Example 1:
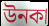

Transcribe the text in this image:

উনকা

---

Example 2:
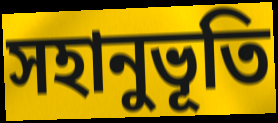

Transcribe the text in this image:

সহানুভূতি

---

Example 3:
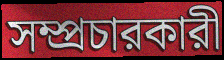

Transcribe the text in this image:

সম্প্রচারকারী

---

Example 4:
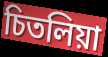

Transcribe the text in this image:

চিতলিয়া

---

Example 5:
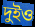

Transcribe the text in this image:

দুইও